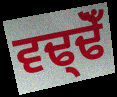
ਵਢ੍ਢੋਁ